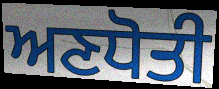
ਅਣਧੋਤੀ